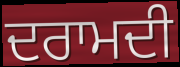
ਦਰਾਮਦੀ